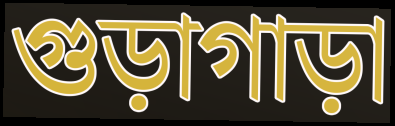
গুড়াগাড়া